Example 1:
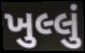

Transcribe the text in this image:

ખુલ્લું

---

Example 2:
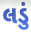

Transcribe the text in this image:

લડું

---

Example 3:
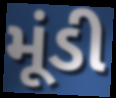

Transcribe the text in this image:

મૂંડી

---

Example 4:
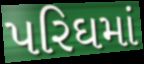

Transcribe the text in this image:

પરિઘમાં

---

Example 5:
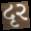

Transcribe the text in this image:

દૃર